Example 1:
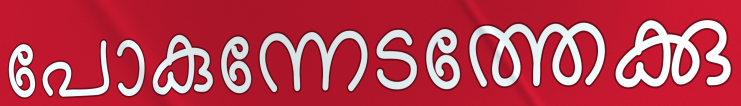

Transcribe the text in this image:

പോകുന്നേടത്തേക്കു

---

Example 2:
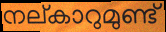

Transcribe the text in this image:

നല്കാറുമുണ്ട്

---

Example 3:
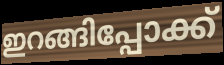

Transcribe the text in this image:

ഇറങ്ങിപ്പോക്ക്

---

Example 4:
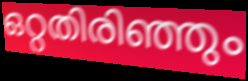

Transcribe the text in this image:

ഒറ്റതിരിഞ്ഞും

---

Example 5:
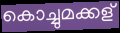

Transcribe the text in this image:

കൊച്ചുമക്കള്